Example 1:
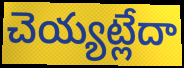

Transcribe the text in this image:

చెయ్యట్లేదా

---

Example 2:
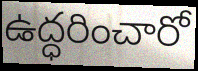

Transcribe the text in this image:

ఉద్ధరించారో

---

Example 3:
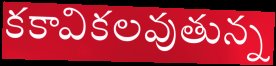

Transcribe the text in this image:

కకావికలవుతున్న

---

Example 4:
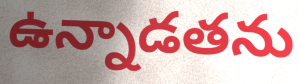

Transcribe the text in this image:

ఉన్నాడతను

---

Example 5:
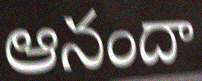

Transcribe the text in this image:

ఆనందా